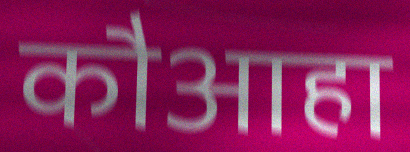
कौआहा